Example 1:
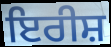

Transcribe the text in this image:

ਇਰੀਸ਼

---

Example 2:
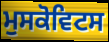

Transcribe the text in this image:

ਮੁਸਕੋਵਿਟਸ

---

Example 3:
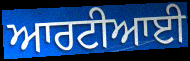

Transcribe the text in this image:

ਆਰਟੀਆਈ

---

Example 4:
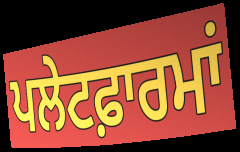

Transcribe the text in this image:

ਪਲੇਟਫ਼ਾਰਮਾਂ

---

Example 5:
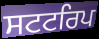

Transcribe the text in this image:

ਸਟਟਰਿਪ